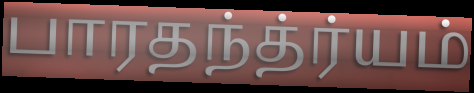
பாரதந்த்ர்யம்